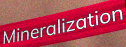
Mineralization